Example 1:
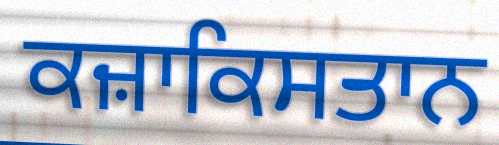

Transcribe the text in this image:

ਕਜ਼ਾਕਿਸਤਾਨ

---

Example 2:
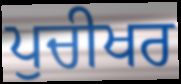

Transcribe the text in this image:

ਪੁਚੀਖਰ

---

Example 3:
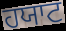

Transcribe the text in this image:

ਹਯਾਟ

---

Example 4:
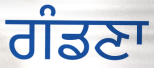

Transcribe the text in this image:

ਗੰਡਣਾ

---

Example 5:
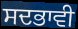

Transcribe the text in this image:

ਸਦਭਾਵੀ